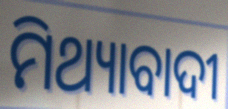
ମିଥ୍ୟାବାଦୀ